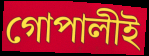
গোপালীই